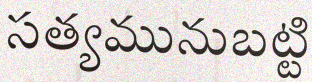
సత్యమునుబట్టి